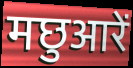
मछुआरें